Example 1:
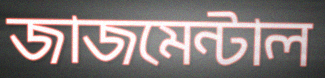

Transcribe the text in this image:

জাজমেন্টাল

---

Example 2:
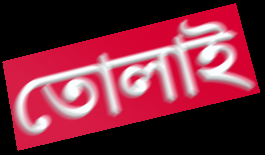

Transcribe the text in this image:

তোলাই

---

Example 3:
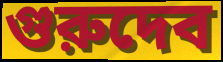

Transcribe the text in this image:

গুরুদেব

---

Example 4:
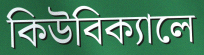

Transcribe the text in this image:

কিউবিক্যালে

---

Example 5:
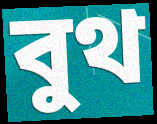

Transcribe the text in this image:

বুথ